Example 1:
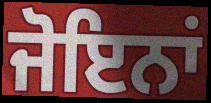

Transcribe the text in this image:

ਜੋਇਨਾਂ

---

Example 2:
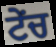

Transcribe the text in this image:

ਟੇਂਚ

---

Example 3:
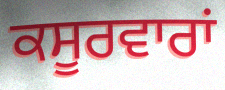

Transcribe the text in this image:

ਕਸੂਰਵਾਰਾਂ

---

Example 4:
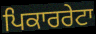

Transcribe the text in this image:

ਪਿਕਾਰਰੇਟਾ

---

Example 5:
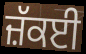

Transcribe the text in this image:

ਜ਼ੱਕਈ